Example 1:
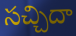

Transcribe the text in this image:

సచ్చిదా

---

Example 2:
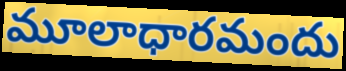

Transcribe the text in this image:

మూలాధారమందు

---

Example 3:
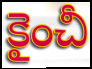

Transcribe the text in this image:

కైంచీ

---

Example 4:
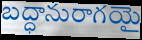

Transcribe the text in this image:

బద్ధానురాగయై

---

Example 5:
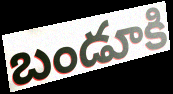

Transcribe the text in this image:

బండూకి